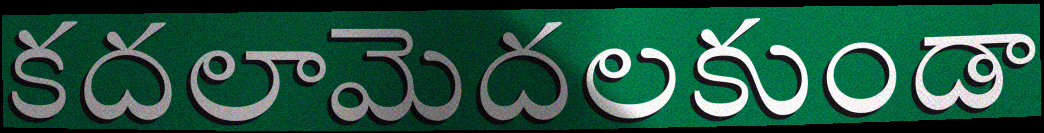
కదలామెదలకుండా